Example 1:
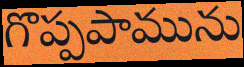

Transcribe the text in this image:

గొప్పపామును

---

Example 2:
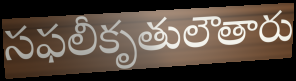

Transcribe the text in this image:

సఫలీకృతులౌతారు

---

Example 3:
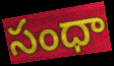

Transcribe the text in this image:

సంధా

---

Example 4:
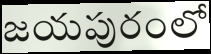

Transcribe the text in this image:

జయపురంలో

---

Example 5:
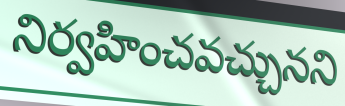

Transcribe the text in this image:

నిర్వహించవచ్చునని